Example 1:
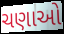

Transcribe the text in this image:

ચણાઓ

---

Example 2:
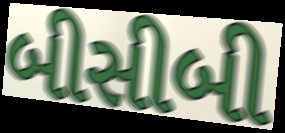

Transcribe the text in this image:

બીસીબી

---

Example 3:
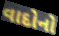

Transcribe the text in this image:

વાદોનો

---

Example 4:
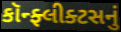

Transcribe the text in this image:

કૉન્ફ્લીક્ટસનું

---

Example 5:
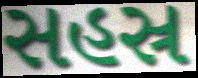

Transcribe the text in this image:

સહસ્ર